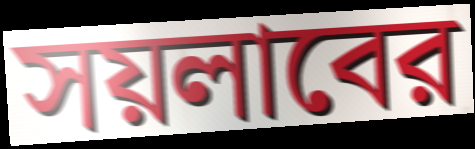
সয়লাবের